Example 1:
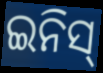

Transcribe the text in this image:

ଇନିସ୍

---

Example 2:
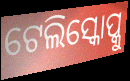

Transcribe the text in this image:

ଟେଲିସ୍କୋପ୍କୁ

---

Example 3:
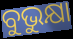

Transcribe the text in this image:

ବୁଭୁକ୍ଷା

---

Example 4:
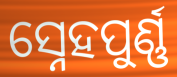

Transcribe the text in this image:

ସ୍ନେହପୁର୍ଣ୍ଣ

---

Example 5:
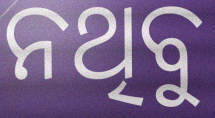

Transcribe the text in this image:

ନଥିବୁ